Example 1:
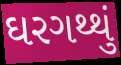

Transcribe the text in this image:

ઘરગથ્થું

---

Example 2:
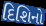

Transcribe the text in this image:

દિશિનો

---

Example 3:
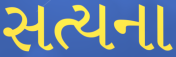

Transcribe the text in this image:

સત્યના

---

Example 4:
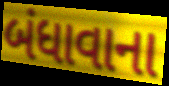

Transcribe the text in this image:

બંધાવાના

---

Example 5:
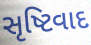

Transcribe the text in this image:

સૃષ્ટિવાદ